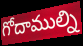
గోదాముల్ని